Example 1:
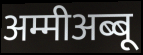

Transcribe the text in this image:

अम्मीअब्बू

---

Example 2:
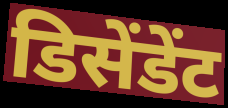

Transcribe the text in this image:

डिसेंडेंट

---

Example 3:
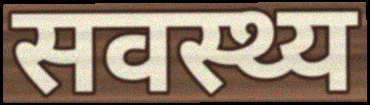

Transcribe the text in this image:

सवस्थ्य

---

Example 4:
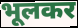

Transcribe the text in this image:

भूलकर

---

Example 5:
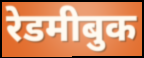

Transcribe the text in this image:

रेडमीबुक